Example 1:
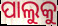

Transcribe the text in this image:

ପାଲୁକୁ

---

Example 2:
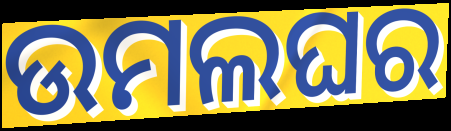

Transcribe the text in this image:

ଉମଲଘର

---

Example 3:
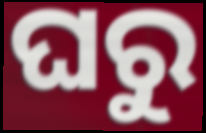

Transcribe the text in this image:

ଘରୁ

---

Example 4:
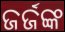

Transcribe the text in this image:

ଜର୍ଜଙ୍କ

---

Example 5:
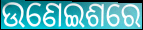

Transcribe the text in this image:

ଉଣେଇଶରେ